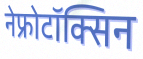
नेफ्रोटॉक्सिन